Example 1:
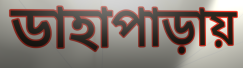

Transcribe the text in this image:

ডাহাপাড়ায়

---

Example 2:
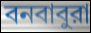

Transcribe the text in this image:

বনবাবুরা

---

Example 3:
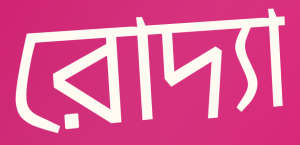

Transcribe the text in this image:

রোদ্যা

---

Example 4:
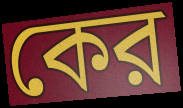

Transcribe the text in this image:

কের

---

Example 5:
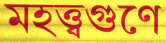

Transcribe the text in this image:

মহত্ত্বগুণে